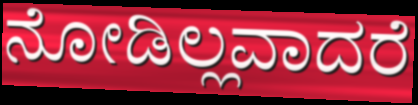
ನೋಡಿಲ್ಲವಾದರೆ